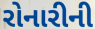
રોનારીની